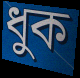
ধুক